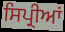
ਸਿਪ੍ਰੀਆਂ